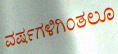
ವರ್ಷಗಳಿಗಿಂತಲೂ